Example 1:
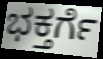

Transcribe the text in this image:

ಭಕ್ತರ್ಗೆ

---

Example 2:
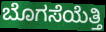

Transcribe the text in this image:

ಬೊಗಸೆಯೆತ್ತಿ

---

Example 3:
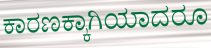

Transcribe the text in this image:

ಕಾರಣಕ್ಕಾಗಿಯಾದರೂ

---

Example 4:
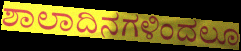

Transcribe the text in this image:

ಶಾಲಾದಿನಗಳಿಂದಲೂ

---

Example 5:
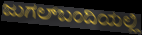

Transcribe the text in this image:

ಜುಗಲ್‌ಬಂದಿಯಲ್ಲಿ